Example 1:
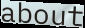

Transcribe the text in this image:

about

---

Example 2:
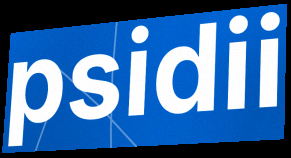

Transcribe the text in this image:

psidii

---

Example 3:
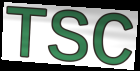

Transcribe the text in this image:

TSC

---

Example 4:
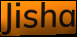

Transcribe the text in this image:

Jisha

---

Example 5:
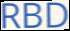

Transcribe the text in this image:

RBD